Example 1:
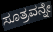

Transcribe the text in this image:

ಸೂತ್ರವನ್ನೇ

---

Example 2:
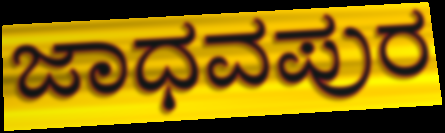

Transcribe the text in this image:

ಜಾಧವಪುರ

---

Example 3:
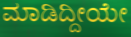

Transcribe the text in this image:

ಮಾಡಿದ್ದೀಯೇ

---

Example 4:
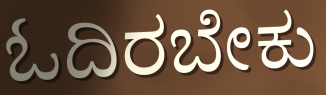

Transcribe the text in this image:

ಓದಿರಬೇಕು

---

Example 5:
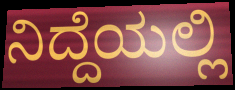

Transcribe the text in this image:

ನಿದ್ದೆಯಲ್ಲಿ